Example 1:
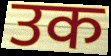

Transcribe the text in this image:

उक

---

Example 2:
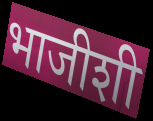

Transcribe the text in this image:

भाजीशी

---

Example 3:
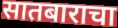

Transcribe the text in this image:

सातबाराचा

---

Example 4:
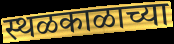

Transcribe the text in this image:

स्थळकाळाच्या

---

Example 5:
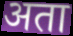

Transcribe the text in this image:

अता